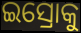
ଇସ୍ରୋକୁ